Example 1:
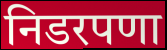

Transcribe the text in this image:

निडरपणा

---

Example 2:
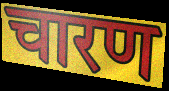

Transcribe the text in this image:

चारण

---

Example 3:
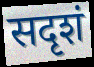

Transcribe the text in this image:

सदृशं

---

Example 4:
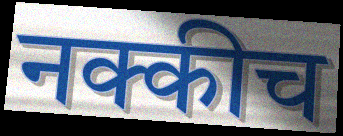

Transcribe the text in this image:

नक्‍कीच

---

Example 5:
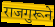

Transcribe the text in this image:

राजगुरूने